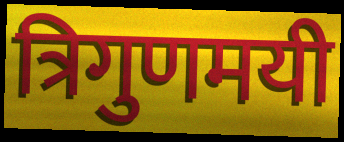
त्रिगुणमयी